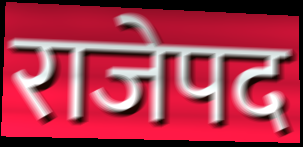
राजेपद